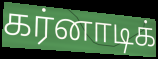
கர்னாடிக்